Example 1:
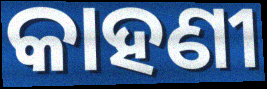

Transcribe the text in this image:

କାହଣୀ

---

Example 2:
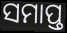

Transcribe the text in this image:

ସମାପ୍ତ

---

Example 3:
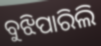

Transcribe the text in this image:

ବୁଝିପାରିଲି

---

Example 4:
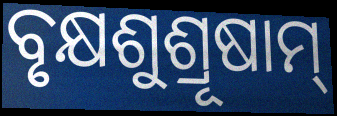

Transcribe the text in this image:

ବୃକ୍ଷଶୁଶ୍ରୂଷାମ୍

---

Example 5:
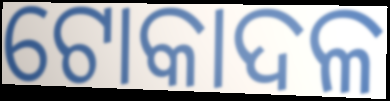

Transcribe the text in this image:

ଟୋକାଦଳ